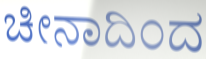
ಚೀನಾದಿಂದ